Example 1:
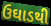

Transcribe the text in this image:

ઉઘાડથી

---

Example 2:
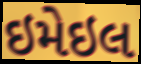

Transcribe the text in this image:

ઇમેઇલ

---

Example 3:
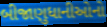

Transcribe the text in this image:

બીજાણુધાનીઓનો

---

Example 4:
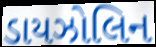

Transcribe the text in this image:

ડાયઝોલિન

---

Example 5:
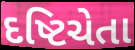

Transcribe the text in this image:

દષ્ટિચેતા